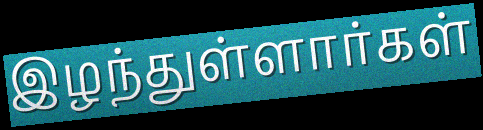
இழந்துள்ளார்கள்